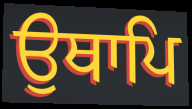
ਉਥਾਪਿ